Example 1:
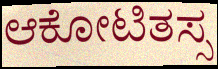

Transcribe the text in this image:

ಆಕೋಟಿತಸ್ಸ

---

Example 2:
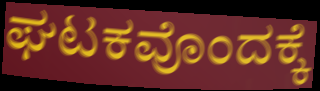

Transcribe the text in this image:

ಘಟಕವೊಂದಕ್ಕೆ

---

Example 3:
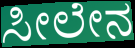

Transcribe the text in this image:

ಸೀಲೇನ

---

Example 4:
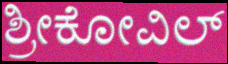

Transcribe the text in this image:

ಶ್ರೀಕೋವಿಲ್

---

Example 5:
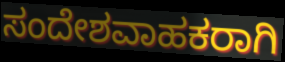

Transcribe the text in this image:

ಸಂದೇಶವಾಹಕರಾಗಿ